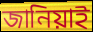
জানিয়াই